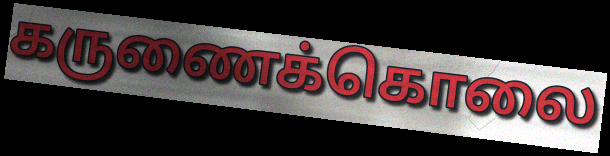
கருணைக்கொலை